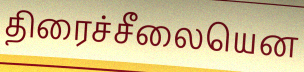
திரைச்சீலையென